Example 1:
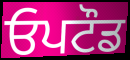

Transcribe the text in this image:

ਓਪਟੌਡ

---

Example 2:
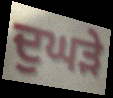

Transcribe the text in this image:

ਦੁਘੜੇ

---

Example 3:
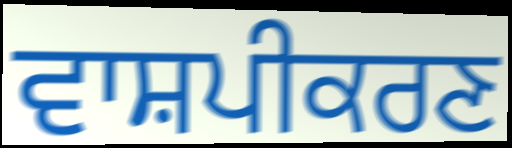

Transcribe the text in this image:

ਵਾਸ਼ਪੀਕਰਣ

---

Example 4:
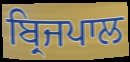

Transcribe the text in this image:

ਬ੍ਰਿਜਪਾਲ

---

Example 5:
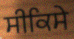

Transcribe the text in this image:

ਸੀਕਿਸੇ